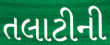
તલાટીની